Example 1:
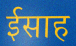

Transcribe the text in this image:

ईसाह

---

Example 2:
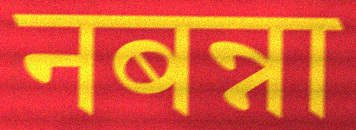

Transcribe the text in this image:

नबन्ना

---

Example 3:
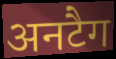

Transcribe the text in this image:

अनटैग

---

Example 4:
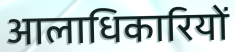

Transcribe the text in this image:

आलाधिकारियों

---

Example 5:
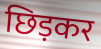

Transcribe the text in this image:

छिड़कर